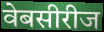
वेबसीरीज